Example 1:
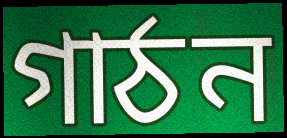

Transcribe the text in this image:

গাঠন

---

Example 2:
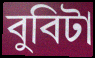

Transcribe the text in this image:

বুবিটা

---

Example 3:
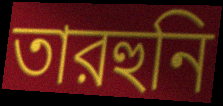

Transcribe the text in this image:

তারহুনি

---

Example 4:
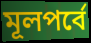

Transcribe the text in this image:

মূলপর্বে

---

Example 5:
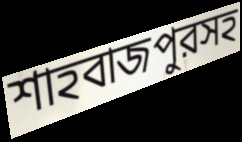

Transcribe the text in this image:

শাহবাজপুরসহ